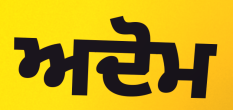
ਅਦੋਮ